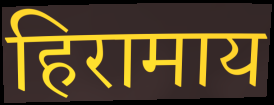
हिरामाय